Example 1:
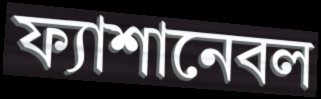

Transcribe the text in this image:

ফ্যাশানেবল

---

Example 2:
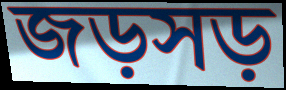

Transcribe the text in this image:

জড়সড়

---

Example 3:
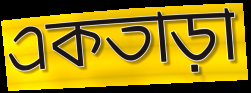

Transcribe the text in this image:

একতাড়া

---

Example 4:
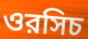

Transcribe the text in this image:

ওরসিচ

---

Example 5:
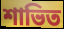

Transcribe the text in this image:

শাভিত